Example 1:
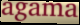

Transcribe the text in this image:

agama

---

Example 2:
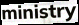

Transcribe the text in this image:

ministry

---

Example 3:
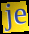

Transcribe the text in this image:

je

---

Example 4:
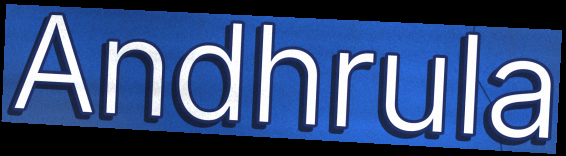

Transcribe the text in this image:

Andhrula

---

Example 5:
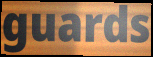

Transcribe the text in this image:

guards